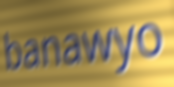
banawyo